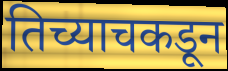
तिच्याचकडून